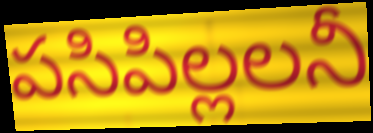
పసిపిల్లలనీ